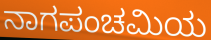
ನಾಗಪಂಚಮಿಯ